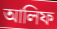
আলিফ